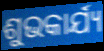
ଶୁଭକାର୍ଯ୍ୟ